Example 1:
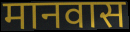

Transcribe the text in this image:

मानवास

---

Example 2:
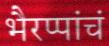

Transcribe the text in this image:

भैरप्पांचं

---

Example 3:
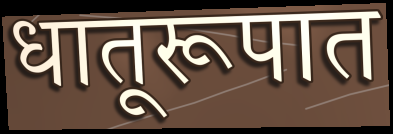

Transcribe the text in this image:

धातूरूपात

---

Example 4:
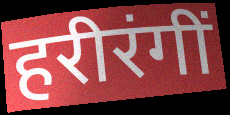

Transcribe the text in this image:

हरीरंगीं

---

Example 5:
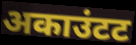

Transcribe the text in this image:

अकाउंटट